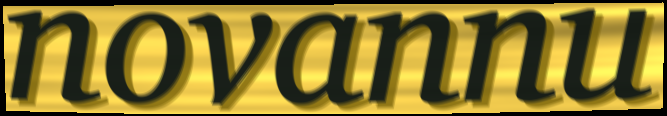
novannu